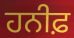
ਹਨੀਫ਼